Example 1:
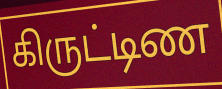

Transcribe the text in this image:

கிருட்டிண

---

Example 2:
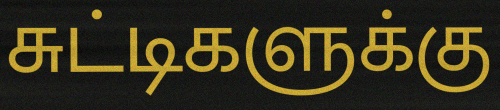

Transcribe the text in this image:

சுட்டிகளுக்கு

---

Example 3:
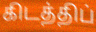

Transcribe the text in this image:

கிடத்திப்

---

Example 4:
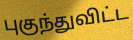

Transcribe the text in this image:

புகுந்துவிட்ட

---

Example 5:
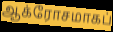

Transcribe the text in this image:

ஆக்ரோசமாகப்